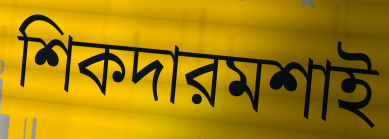
শিকদারমশাই